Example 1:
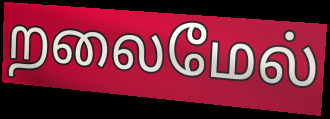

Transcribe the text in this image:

றலைமேல்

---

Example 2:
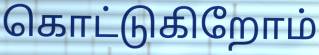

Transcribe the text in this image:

கொட்டுகிறோம்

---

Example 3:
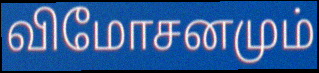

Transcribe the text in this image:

விமோசனமும்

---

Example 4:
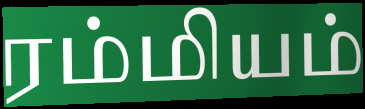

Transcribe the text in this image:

ரம்மியம்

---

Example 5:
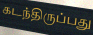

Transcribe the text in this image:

கடந்திருப்பது